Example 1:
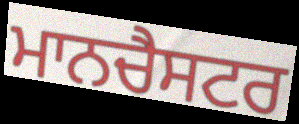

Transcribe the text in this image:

ਮਾਨਚੈਸਟਰ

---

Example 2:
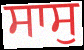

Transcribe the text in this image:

ਸਾਸੁ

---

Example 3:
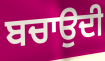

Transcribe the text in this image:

ਬਚਾਉਦੀ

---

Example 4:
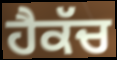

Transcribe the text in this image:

ਹੈਕੱਚ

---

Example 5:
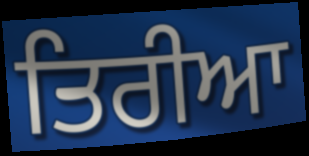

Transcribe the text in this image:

ਤਿਰੀਆ